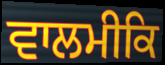
ਵਾਲਮੀਕਿ